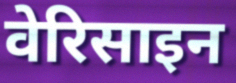
वेरिसाइन